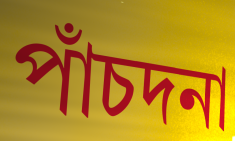
পাঁচদনা